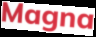
Magna